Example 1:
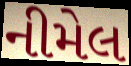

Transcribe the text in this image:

નીમેલ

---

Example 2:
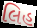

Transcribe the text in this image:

લિહ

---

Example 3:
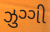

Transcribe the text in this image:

ઝુગ્ગી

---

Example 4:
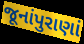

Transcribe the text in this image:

જૂનાંપુરાણાં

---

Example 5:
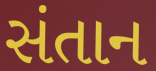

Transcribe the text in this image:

સંતાન